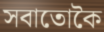
সবাতোকৈ